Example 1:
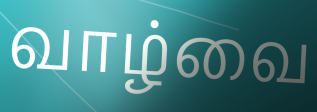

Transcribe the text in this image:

வாழ்வை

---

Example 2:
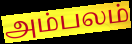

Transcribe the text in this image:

அம்பலம்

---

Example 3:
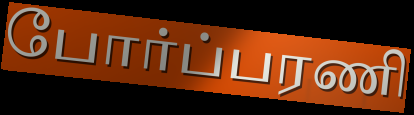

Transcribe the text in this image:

போர்ப்பரணி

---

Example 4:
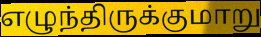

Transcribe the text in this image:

எழுந்திருக்குமாறு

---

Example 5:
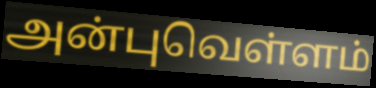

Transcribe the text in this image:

அன்புவெள்ளம்